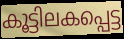
കൂട്ടിലകപ്പെട്ട